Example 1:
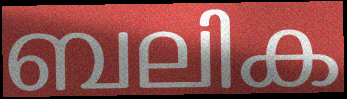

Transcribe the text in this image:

ബലിക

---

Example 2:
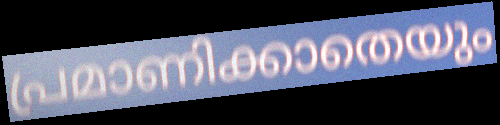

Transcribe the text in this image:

പ്രമാണിക്കാതെയും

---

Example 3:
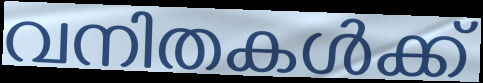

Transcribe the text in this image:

വനിതകൾക്ക്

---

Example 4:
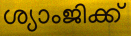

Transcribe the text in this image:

ശ്യാംജിക്ക്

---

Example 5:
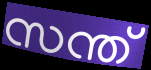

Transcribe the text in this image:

സന്ത്